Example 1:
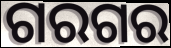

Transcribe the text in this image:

ଗରଗର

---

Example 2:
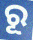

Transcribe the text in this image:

ରୂ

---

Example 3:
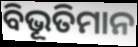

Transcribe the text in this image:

ବିଭୂତିମାନ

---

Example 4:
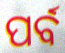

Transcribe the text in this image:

ପର୍ବ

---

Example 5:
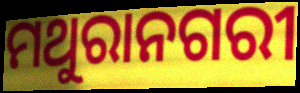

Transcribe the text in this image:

ମଥୁରାନଗରୀ